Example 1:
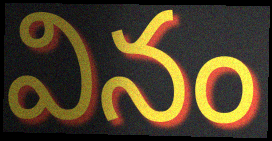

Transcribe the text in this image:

వినం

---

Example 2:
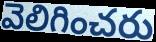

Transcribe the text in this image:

వెలిగించరు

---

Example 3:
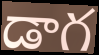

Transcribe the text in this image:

డాగ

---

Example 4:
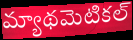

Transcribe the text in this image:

మ్యాథమెటికల్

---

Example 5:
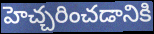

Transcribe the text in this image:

హెచ్చరించడానికి